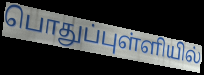
பொதுப்புள்ளியில்